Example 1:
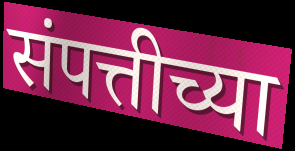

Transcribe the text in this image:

संपत्तीच्या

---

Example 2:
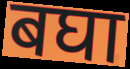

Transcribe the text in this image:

बघा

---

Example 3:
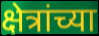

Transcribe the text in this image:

क्षेत्रांच्या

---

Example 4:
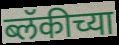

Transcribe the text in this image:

ब्लॅकीच्या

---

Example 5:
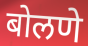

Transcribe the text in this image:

बोलणे